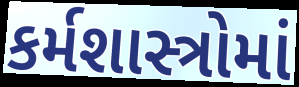
કર્મશાસ્ત્રોમાં